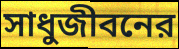
সাধুজীবনের